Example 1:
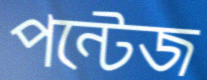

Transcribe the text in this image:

পন্টেজ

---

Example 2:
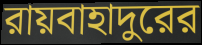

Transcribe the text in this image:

রায়বাহাদুরের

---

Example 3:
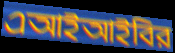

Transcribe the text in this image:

এআইআইবির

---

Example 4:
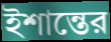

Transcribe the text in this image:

ইশান্তের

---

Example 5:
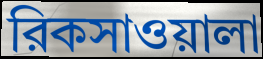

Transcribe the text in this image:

রিকসাওয়ালা